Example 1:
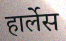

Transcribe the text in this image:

हार्लेस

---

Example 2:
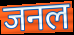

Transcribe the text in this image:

जनल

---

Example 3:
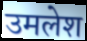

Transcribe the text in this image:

उमलेश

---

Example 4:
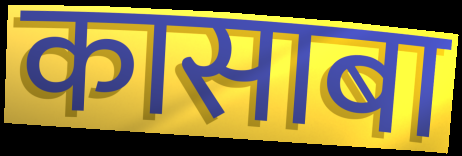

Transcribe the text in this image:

कासाबा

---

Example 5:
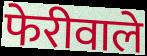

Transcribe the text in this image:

फेरीवाले